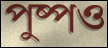
পুষ্পও